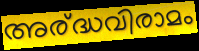
അര്ദ്ധവിരാമം